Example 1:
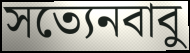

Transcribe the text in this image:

সত্যেনবাবু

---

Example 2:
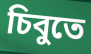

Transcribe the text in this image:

চিবুতে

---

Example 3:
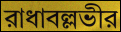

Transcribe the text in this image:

রাধাবল্লভীর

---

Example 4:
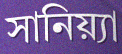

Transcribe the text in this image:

সানিয়্যা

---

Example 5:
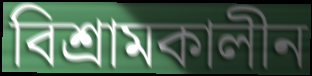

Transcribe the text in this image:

বিশ্রামকালীন